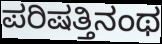
ಪರಿಷತ್ತಿನಂಥ